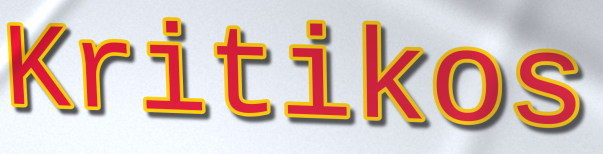
Kritikos